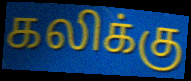
கலிக்கு